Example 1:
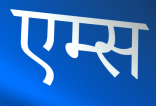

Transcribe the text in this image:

एम्स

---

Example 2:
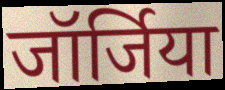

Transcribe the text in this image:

जॉर्जिया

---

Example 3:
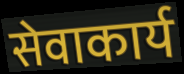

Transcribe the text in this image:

सेवाकार्य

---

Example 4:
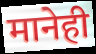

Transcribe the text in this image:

मानेही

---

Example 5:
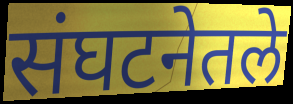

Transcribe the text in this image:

संघटनेतले